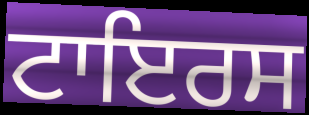
ਟਾਇਰਸ